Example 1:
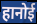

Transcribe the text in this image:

हानोई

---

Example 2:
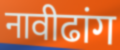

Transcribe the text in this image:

नावीढांग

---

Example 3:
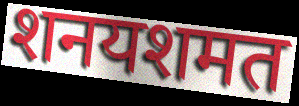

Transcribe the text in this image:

शनयशमत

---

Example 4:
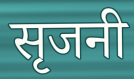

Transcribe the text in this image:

सृजनी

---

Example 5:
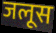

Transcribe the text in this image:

जलूस